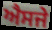
ਐਸਜੇ